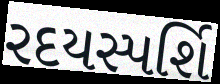
રદયસ્પર્શિ